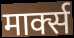
मार्क्‍स